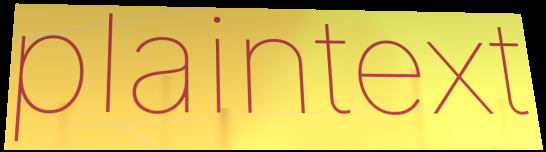
plaintext